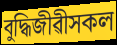
বুদ্ধিজীৱীসকল